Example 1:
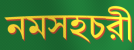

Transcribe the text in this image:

নমসহচরী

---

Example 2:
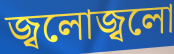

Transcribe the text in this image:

জ্বলোজ্বলো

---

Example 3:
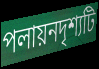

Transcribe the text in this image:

পলায়নদৃশ্যটি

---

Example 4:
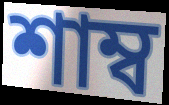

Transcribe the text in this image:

শাম্ব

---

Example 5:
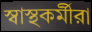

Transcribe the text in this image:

স্বাস্থকর্মীরা